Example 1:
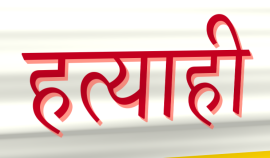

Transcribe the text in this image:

हत्याही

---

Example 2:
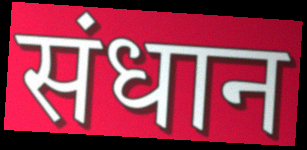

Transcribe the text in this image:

संधान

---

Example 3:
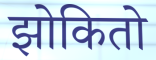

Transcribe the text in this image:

झोकितो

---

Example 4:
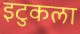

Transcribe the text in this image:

इटुकला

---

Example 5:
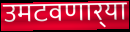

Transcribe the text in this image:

उमटवणार्‍या